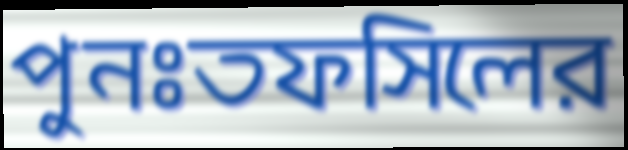
পুনঃতফসিলের